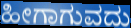
ಹೀಗಾಗುವದು